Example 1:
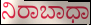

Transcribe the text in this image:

ನಿರಾಬಾಧಾ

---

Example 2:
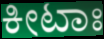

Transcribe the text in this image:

ಕೀಟಾಃ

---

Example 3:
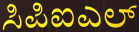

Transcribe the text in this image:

ಸಿಪಿಐಎಲ್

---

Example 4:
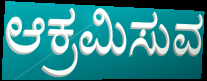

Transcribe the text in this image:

ಆಕ್ರಮಿಸುವ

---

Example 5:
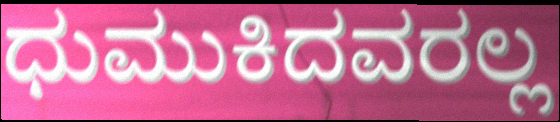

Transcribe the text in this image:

ಧುಮುಕಿದವರಲ್ಲ